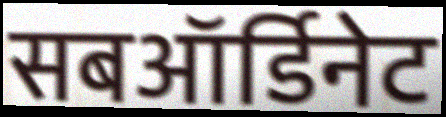
सबऑर्डिनेट